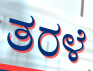
ತರಳೆ